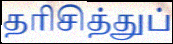
தரிசித்துப்